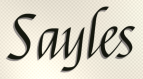
Sayles